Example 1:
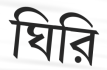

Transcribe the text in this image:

ঘিরি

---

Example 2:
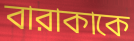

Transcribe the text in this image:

বারাকাকে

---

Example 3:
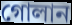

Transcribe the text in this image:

গোলান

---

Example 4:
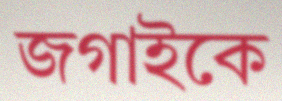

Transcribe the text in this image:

জগাইকে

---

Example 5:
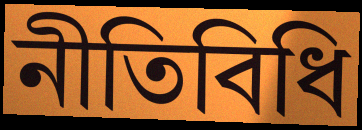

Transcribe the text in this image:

নীতিবিধি